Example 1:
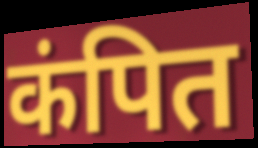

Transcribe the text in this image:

कंपित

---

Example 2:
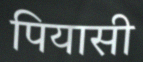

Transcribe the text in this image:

पियासी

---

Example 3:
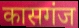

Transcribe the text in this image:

कासगंज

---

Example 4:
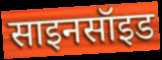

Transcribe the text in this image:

साइनसॉइड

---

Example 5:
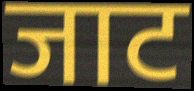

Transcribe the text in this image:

जाट